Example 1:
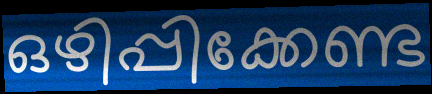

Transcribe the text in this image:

ഒഴിപ്പിക്കേണ്ട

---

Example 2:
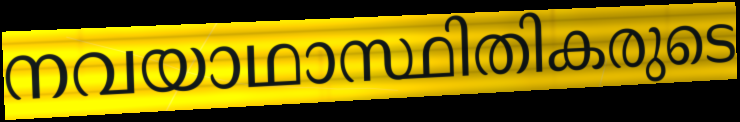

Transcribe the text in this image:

നവയാഥാസ്ഥിതികരുടെ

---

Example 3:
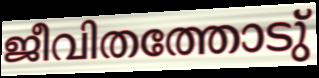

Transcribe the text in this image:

ജീവിതത്തോടു്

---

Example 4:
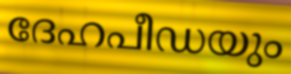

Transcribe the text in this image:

ദേഹപീഡയും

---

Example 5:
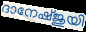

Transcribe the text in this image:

ദാനേഷ്ജുയി